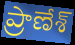
ప్రాణేశ్